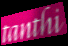
tanthi